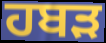
ਹਬੜ